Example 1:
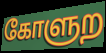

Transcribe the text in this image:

கோளுற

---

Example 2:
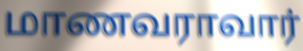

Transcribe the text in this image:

மாணவராவார்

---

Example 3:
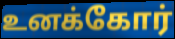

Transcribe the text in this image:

உனக்கோர்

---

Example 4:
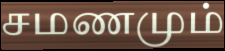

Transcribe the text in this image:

சமணமும்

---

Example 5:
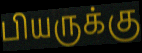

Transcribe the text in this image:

பியருக்கு